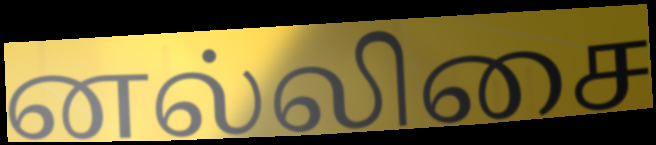
னல்லிசை